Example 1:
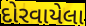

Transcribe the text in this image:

દોરવાયેલા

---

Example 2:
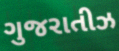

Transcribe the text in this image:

ગુજરાતીઝ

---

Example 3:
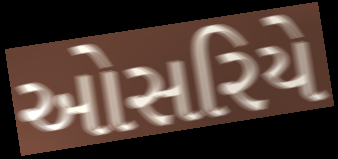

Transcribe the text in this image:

ઓસરિયે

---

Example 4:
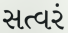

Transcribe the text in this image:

સત્વરં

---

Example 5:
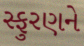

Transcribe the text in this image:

સ્ફુરણને